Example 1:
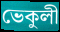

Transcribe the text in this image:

ভেকুলী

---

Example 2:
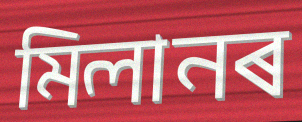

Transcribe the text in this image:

মিলানৰ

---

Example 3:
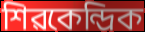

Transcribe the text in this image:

শিৱকেন্দ্ৰিক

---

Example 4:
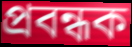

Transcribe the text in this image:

প্ৰবন্ধক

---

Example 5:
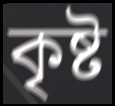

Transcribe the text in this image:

কৃষ্ট